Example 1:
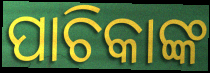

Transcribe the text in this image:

ପାଚିକାଙ୍କ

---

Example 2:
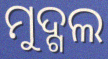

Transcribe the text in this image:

ମୁଦ୍ଗଲ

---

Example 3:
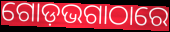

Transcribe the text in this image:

ଗୋଡ଼ଭଗାଠାରେ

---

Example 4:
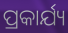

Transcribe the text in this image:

ପ୍ରକାର୍ଯ୍ୟ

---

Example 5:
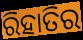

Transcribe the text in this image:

ରିହାତିର